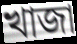
খাজা